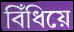
বিঁধিয়ে